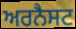
ਅਰਨੈਸਟ